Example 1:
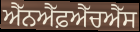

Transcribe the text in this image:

ਐੱਨਐੱਫ਼ਐੱਚਐੱਸ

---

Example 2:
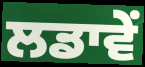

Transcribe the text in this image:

ਲਡਾਵੇਂ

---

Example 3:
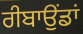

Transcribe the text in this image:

ਰੀਬਾਉਂਡਾਂ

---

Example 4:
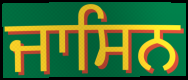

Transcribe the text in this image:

ਜਾਸਿਨ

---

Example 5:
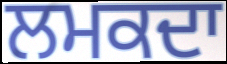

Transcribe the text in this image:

ਲਮਕਦਾ